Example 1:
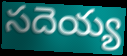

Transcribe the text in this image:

సదెయ్య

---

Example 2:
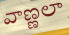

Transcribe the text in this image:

వాణ్ణలా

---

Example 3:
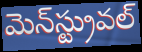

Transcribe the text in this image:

మెన్‌స్ట్రువల్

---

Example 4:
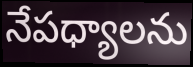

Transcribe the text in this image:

నేపధ్యాలను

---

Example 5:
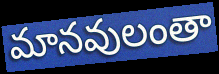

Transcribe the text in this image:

మానవులంతా